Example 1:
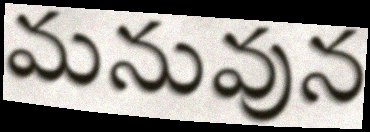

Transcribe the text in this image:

మనువున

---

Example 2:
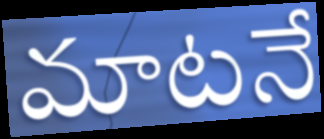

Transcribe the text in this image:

మాటనే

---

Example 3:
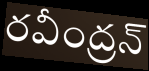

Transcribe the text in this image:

రవీంద్రన్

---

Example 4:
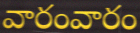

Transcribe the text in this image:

వారంవారం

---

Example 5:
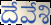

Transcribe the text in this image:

దేవేశి